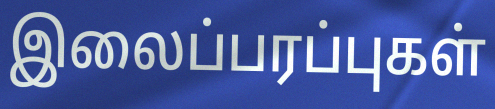
இலைப்பரப்புகள்